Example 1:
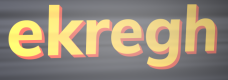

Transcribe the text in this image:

ekregh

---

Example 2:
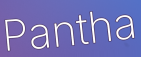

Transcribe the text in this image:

Pantha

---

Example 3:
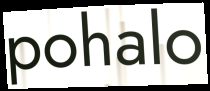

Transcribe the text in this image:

pohalo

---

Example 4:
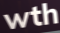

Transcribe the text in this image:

wth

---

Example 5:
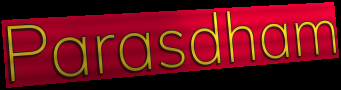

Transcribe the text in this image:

Parasdham